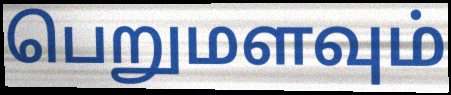
பெறுமளவும்